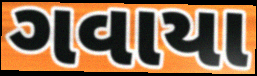
ગવાયા